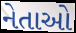
નેતાઓ